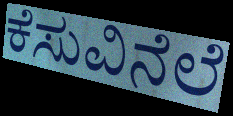
ಕೆಸುವಿನೆಲೆ